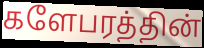
களேபரத்தின்